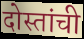
दोस्तांची